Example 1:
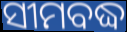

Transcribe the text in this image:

ସୀମବଦ୍ଧ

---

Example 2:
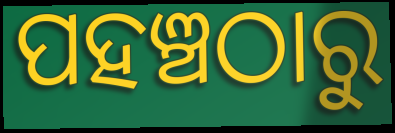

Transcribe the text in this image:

ପହଞ୍ଚଠାରୁ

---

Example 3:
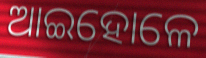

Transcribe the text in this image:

ଆଇହୋଳେ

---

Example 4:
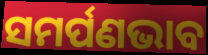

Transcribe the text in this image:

ସମର୍ପଣଭାବ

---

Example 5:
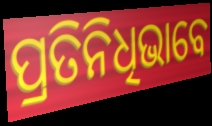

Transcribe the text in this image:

ପ୍ରତିନିଧିଭାବେ